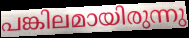
പങ്കിലമായിരുന്നു